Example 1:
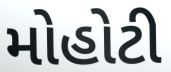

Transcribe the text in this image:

મોહોટી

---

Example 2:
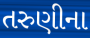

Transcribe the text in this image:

તરુણીના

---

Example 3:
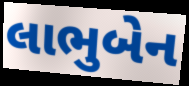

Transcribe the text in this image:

લાભુબેન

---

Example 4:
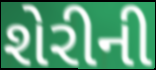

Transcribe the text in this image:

શેરીની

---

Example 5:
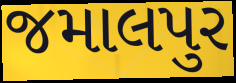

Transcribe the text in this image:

જમાલપુર